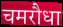
चमरौधा